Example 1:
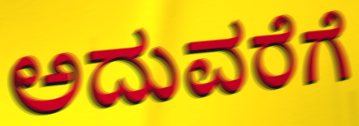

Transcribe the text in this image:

ಅದುವರೆಗೆ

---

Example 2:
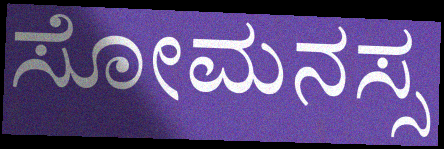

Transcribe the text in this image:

ಸೋಮನಸ್ಸ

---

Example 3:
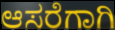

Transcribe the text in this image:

ಆಸರೆಗಾಗಿ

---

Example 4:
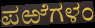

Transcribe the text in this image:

ಪಱೆಗಳಂ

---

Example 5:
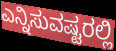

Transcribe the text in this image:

ಎನ್ನಿಸುವಷ್ಟರಲ್ಲಿ